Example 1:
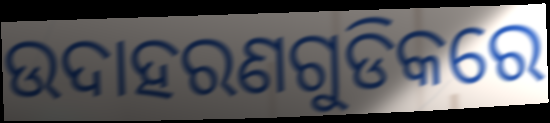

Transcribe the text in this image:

ଉଦାହରଣଗୁଡିକରେ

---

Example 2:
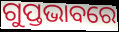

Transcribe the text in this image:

ଗୁପ୍ତଭାବରେ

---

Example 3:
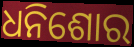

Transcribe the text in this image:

ଧନିଶୋର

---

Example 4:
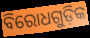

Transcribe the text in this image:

ବିରୋଧଗୁଡ଼ିକ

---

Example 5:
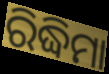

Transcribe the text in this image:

ରିଦ୍ଧିମା